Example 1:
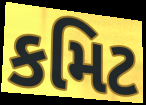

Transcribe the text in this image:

કમિટ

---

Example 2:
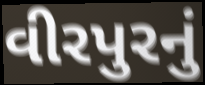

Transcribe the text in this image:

વીરપુરનું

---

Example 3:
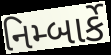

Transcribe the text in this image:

નિમ્બાર્કે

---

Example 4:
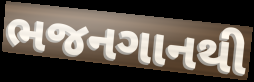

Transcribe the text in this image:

ભજનગાનથી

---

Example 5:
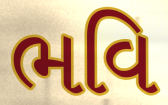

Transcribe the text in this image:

ભવિ